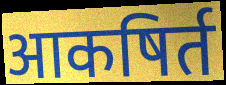
आकषिर्त